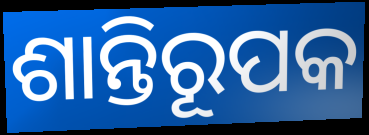
ଶାନ୍ତିରୂପକ